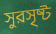
সুরসৃষ্ট